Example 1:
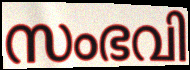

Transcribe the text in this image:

സംഭവി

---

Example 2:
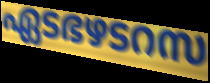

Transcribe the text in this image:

ഏടഭഴടറസ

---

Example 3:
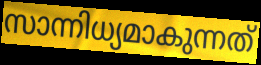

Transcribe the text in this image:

സാന്നിധ്യമാകുന്നത്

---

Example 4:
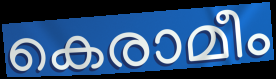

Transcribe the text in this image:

കെരാമീം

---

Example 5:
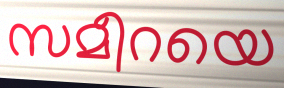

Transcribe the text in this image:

സമീറയെ